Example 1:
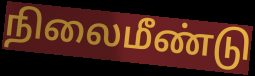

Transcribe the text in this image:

நிலைமீண்டு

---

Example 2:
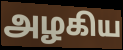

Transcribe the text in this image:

அழகிய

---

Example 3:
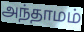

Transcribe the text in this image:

அந்தாமம்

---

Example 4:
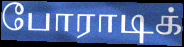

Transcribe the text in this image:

போராடிக்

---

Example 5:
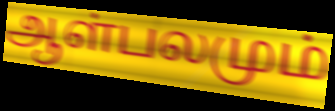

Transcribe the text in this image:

ஆள்பலமும்